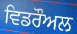
ਵਿਡਰੌਅਲ